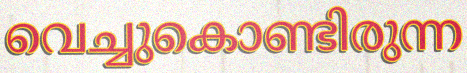
വെച്ചുകൊണ്ടിരുന്ന